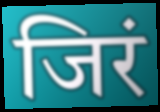
जिरं